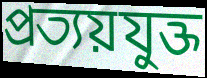
প্রত্যয়যুক্ত